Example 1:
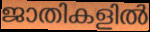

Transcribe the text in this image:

ജാതികളിൽ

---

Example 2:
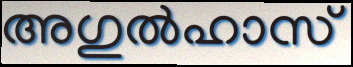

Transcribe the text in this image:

അഗുൽഹാസ്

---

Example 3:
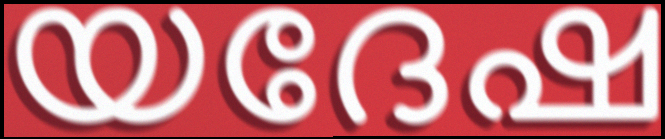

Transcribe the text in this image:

യദേഷ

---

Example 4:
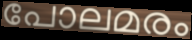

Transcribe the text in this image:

പോലമരം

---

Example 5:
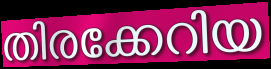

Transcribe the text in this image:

തിരക്കേറിയ